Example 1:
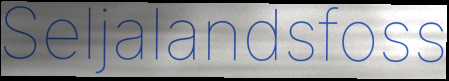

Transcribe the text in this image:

Seljalandsfoss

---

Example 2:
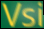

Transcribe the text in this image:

Vsi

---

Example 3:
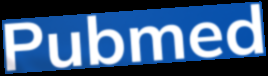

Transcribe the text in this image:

Pubmed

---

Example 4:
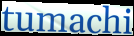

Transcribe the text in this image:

tumachi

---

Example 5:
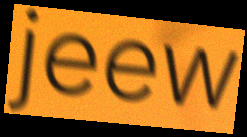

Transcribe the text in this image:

jeew